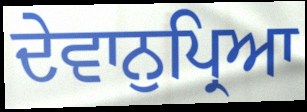
ਦੇਵਾਨੁਪ੍ਰਿਆ